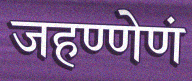
जहण्णेणं